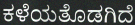
ಕಳೆಯತೊಡಗಿದೆ